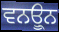
ਵਨਊ੍ਨ